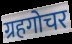
ग्रहगोचर